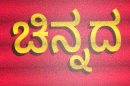
ಚಿನ್ನದ